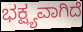
ಭಕ್ಷ್ಯವಾಗಿದೆ